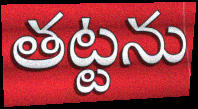
తట్టను